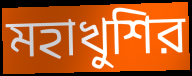
মহাখুশির